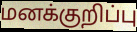
மனக்குறிப்பு